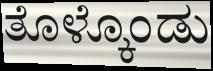
ತೊಳ್ಕೊಂಡು